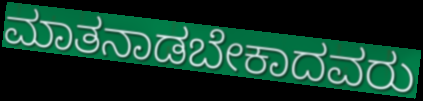
ಮಾತನಾಡಬೇಕಾದವರು